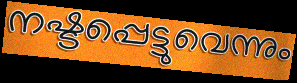
നഷ്ടപ്പെട്ടുവെന്നും